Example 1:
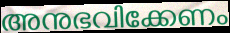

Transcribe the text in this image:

അനുഭവിക്കേണം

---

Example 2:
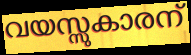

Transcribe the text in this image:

വയസ്സുകാരന്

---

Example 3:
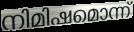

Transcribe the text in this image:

നിമിഷമൊന്ന്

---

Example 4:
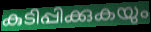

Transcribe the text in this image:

കുടിപ്പിക്കുകയും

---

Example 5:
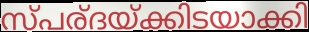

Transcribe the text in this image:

സ്പര്ദയ്ക്കിടയാക്കി